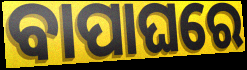
ବାପାଘରେ